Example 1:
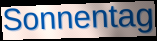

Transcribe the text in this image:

Sonnentag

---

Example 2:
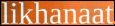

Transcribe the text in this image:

likhanaat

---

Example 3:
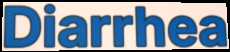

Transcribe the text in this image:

Diarrhea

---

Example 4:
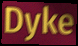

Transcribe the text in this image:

Dyke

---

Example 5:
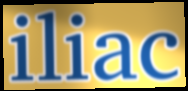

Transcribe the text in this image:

iliac